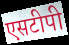
एसटीपी